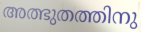
അത്ഭുതത്തിനു